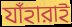
যাঁহারাই